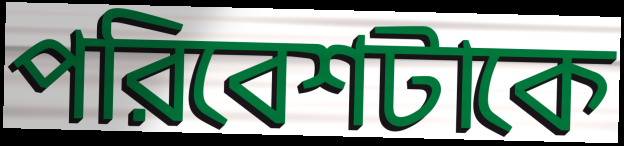
পরিবেশটাকে